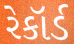
રેકૉર્ડ